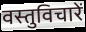
वस्तुविचारें